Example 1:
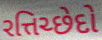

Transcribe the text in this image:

રત્તિચ્છેદો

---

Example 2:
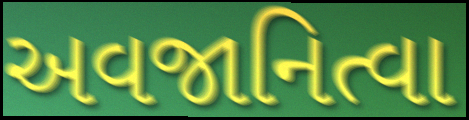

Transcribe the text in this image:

અવજાનિત્વા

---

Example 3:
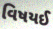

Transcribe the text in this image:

વિષયઈ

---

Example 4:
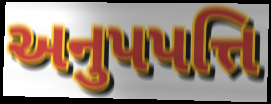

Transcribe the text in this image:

અનુપપત્તિ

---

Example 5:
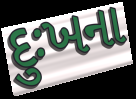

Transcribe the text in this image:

દુઃખના